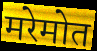
मरेमोत